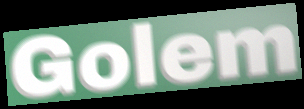
Golem